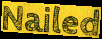
Nailed